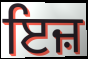
ਇਜ਼